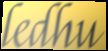
ledhu